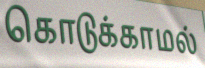
கொடுக்காமல்